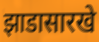
झाडासारखे